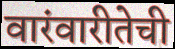
वारंवारीतेची